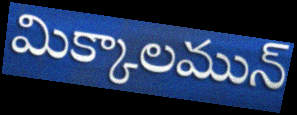
మిక్కాలమున్